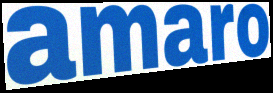
amaro